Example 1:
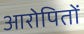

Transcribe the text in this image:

आरोपितों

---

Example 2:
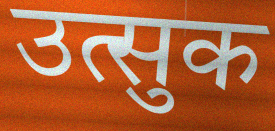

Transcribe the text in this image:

उत्‍सुक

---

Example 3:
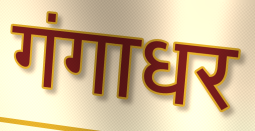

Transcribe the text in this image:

गंगाधर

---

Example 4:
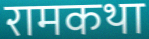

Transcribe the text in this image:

रामकथा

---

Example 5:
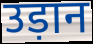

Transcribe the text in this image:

उड़ान